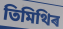
তিমিথিৰ